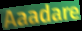
Aaadare